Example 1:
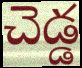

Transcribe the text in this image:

చెడ్డ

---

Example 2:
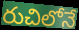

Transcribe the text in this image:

రుచిలోనే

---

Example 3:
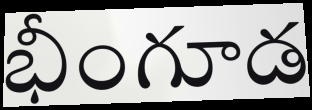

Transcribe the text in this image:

భీంగూడ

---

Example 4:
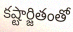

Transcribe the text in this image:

కష్టార్జితంతో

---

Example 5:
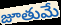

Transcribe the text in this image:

జూతుమే